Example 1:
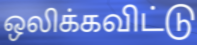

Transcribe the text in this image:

ஒலிக்கவிட்டு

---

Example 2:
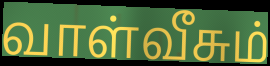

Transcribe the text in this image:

வாள்வீசும்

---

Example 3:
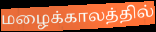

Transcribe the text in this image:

மழைக்காலத்தில்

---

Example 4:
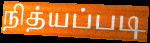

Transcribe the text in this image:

நித்யப்படி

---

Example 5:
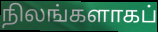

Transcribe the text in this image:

நிலங்களாகப்